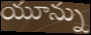
యూన్ను